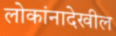
लोकांनादेखील